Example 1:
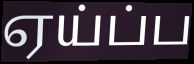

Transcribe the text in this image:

ஏய்ப்ப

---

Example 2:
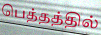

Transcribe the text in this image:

பெத்தத்தில்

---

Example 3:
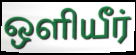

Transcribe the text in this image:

ஒளியீர்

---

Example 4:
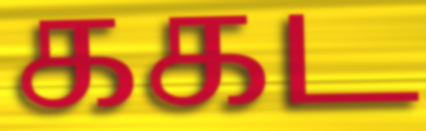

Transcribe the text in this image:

ககட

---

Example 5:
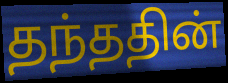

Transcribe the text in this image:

தந்ததின்